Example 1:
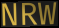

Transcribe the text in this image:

NRW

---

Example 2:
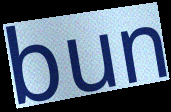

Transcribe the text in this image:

bun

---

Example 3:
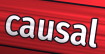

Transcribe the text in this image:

causal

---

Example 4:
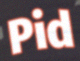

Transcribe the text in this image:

Pid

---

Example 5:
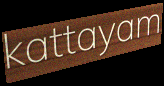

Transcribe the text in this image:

kattayam